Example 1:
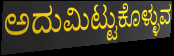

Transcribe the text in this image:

ಅದುಮಿಟ್ಟುಕೊಳ್ಳುವ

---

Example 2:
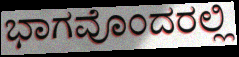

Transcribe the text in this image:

ಭಾಗವೊಂದರಲ್ಲಿ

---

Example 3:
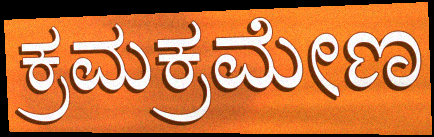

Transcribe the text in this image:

ಕ್ರಮಕ್ರಮೇಣ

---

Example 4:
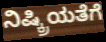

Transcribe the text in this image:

ನಿಷ್ಕ್ರಿಯತೆಗೆ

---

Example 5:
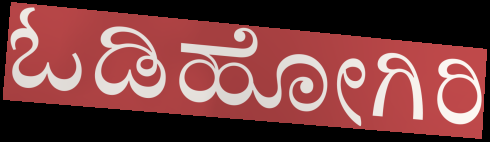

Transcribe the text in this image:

ಓಡಿಹೋಗಿರಿ